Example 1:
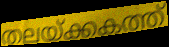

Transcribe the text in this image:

തലയ്ക്കകത്ത്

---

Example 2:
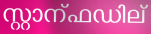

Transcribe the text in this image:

സ്റ്റാന്ഫഡില്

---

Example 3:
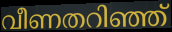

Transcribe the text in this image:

വീണതറിഞ്ഞ്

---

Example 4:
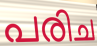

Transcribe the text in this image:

പരിച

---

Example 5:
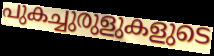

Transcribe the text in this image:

പുകച്ചുരുളുകളുടെ